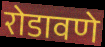
रोडावणे